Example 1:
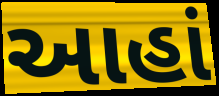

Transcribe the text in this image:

આહાં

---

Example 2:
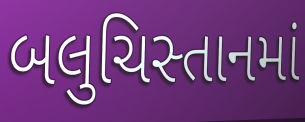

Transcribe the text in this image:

બલુચિસ્તાનમાં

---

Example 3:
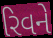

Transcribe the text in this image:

રિવને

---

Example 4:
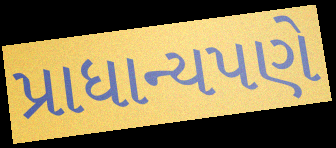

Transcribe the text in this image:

પ્રાધાન્યપણે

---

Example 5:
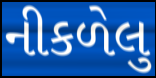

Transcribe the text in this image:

નીકળેલુ